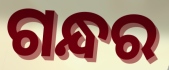
ଗନ୍ଧର